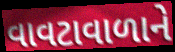
વાવટાવાળાને